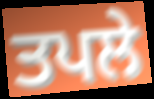
ਤਪਲੇ